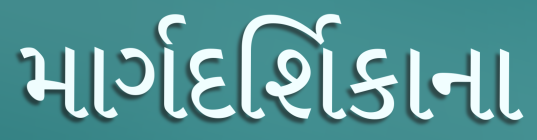
માર્ગદર્શિકાના